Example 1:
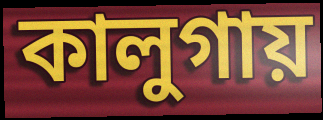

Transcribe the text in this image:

কালুগায়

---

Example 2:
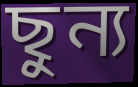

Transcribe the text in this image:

ছুন্য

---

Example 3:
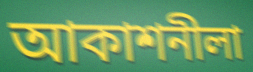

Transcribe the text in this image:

আকাশনীলা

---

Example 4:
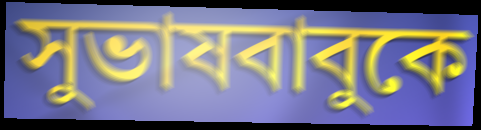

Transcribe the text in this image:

সুভাষবাবুকে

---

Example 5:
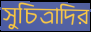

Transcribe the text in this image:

সুচিত্রাদির